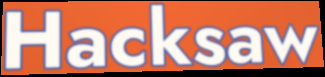
Hacksaw